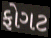
ફોગટ